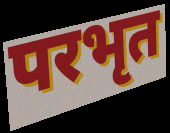
परभृत